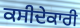
ਕਸੀਦੇਕਾਰੀ